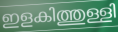
ഇളകിത്തുള്ളി